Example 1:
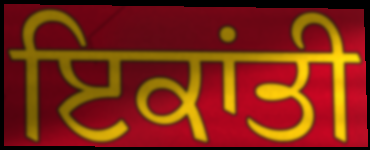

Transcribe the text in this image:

ਇਕਾਂਤੀ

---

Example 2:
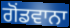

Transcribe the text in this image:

ਗੋਂਡਵਾਨਾ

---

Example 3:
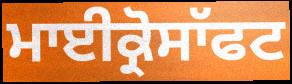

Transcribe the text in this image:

ਮਾਈਕ੍ਰੋਸਾੱਫਟ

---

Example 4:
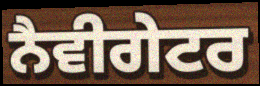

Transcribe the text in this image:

ਨੈਵੀਗੇਟਰ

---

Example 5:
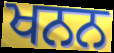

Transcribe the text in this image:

ਖਨਨ